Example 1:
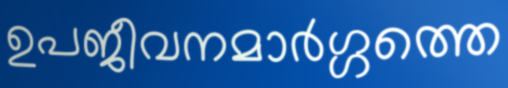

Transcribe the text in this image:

ഉപജീവനമാർഗ്ഗത്തെ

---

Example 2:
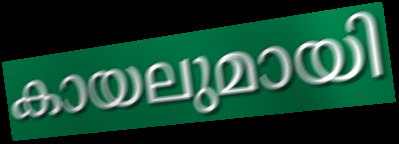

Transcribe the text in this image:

കായലുമായി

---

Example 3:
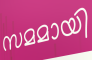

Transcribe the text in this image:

സമമായി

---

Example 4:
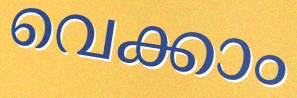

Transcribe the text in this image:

വെക്കാം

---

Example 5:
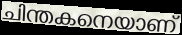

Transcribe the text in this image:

ചിന്തകനെയാണ്